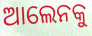
ଆଲେନକୁ